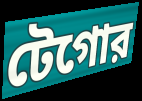
টেগোর